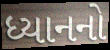
ધ્યાનનો